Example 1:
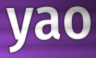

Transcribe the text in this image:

yao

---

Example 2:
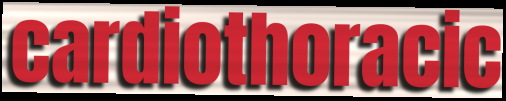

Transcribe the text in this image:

cardiothoracic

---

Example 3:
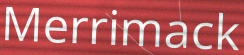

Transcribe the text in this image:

Merrimack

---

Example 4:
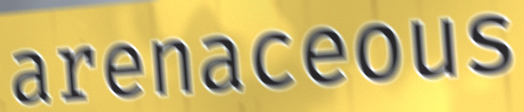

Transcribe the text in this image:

arenaceous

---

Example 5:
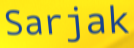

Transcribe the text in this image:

Sarjak